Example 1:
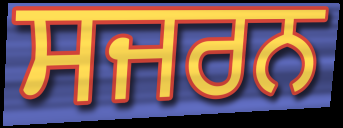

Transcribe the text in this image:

ਸਜਰਨ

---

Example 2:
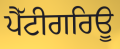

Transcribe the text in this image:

ਪੈੱਟੀਗਰਿਊ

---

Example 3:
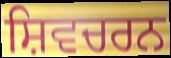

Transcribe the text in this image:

ਸ਼ਿਵਚਰਨ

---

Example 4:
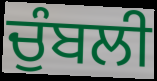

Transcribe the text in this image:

ਚੁੰਬਲੀ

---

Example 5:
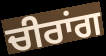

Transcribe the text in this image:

ਚੀਰਾਂਗ